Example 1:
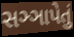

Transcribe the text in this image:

સઞ્ઞાપેતું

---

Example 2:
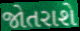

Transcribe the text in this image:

જોતરાશે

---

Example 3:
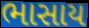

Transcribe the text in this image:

ભાસાય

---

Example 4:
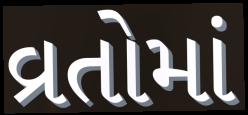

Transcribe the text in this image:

વ્રતોમાં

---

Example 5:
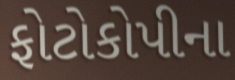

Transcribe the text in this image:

ફોટોકોપીના